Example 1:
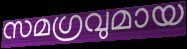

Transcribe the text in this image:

സമഗ്രവുമായ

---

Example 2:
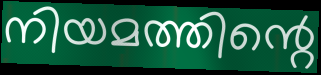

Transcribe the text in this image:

നിയമത്തിന്റെ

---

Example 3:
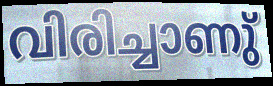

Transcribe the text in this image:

വിരിച്ചാണു്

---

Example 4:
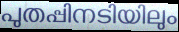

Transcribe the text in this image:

പുതപ്പിനടിയിലും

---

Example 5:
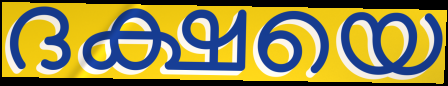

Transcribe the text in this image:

ദക്ഷയെ